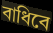
বাধিবে